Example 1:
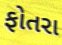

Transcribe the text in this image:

ફોતરા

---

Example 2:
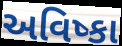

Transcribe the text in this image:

અવિષ્કા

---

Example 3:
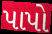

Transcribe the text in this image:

પાપો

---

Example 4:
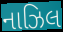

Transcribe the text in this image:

નાઝિલ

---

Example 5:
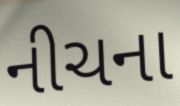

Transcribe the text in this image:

નીચના